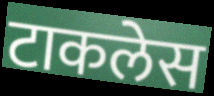
टाकलेस